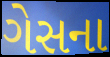
ગેસના